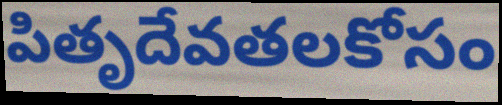
పితృదేవతలకోసం